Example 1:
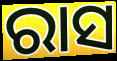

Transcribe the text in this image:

ରାସ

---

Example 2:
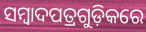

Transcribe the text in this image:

ସମ୍ୱାଦପତ୍ରଗୁଡ଼ିକରେ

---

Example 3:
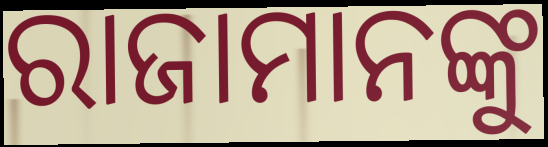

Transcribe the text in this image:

ରାଜାମାନଙ୍କୁ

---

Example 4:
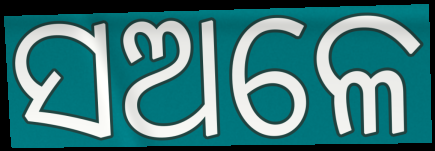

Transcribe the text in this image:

ସଅଳେ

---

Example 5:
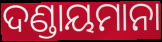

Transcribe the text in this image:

ଦଣ୍ଡାୟମାନା